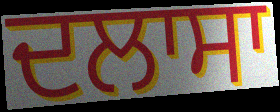
ਦਲਾਸਾ